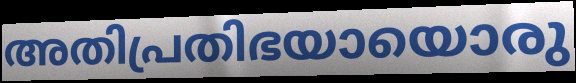
അതിപ്രതിഭയായൊരു